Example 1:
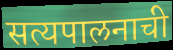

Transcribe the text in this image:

सत्यपालनाची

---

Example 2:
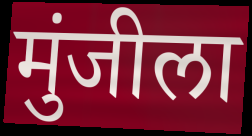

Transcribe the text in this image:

मुंजीला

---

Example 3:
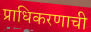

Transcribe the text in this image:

प्राधिकरणाची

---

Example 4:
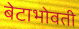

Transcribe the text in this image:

बेटाभोवती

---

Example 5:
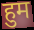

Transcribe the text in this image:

हुम